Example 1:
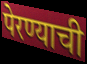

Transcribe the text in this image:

पेरण्याची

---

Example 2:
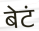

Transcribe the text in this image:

बेटं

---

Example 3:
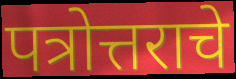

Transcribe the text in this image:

पत्रोत्तराचे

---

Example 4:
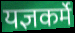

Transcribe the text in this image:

यज्ञकर्मे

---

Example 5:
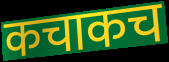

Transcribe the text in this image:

कचाकच